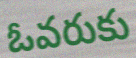
ఓవరుకు